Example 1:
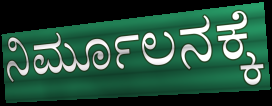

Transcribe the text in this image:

ನಿರ್ಮೂಲನಕ್ಕೆ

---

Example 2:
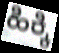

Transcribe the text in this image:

ಹಿಕ್ಕಿ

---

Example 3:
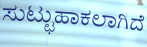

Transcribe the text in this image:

ಸುಟ್ಟುಹಾಕಲಾಗಿದೆ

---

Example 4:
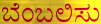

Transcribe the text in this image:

ಬೆಂಬಲಿಸು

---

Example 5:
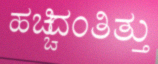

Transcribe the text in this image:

ಹಚ್ಚಿದಂತಿತ್ತು